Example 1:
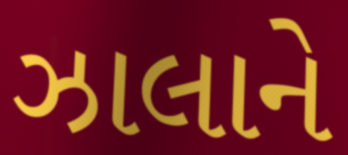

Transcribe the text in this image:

ઝાલાને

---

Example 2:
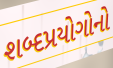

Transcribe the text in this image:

શબ્દપ્રયોગોનો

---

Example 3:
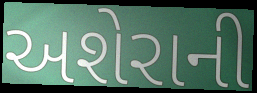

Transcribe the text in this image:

અશેરાની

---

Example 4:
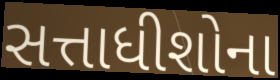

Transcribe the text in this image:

સત્તાધીશોના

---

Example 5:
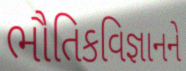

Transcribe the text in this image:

ભૌતિકવિજ્ઞાનને